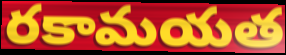
రకామయత